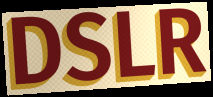
DSLR